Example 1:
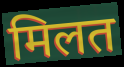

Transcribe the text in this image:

मिलत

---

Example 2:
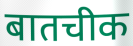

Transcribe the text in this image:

बातचीक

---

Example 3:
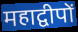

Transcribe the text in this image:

महाद्वीपों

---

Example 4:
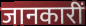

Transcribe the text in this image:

जानकारीं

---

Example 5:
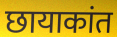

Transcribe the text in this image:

छायाकांत